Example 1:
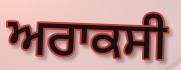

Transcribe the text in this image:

ਅਰਾਕਸੀ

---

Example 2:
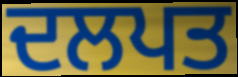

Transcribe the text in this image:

ਦਲਪਤ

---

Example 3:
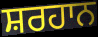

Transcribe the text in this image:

ਸ਼ਰਹਾਨ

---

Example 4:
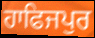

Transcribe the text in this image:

ਹਾਫਿਜਪੁਰ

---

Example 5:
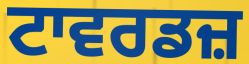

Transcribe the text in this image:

ਟਾਵਰਡਜ਼